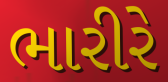
ભારીરે